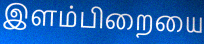
இளம்பிறையை